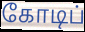
கோடிப்